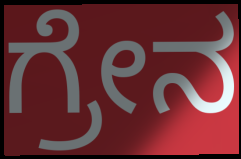
ಗ್ರೇನ